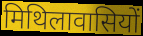
मिथिलावासियों